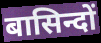
बासिन्दों